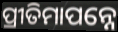
ପ୍ରୀତିମାପନ୍ନେ